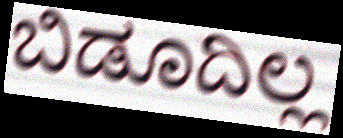
ಬಿಡೂದಿಲ್ಲ